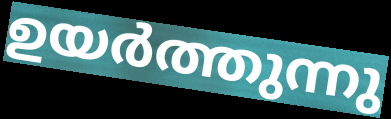
ഉയർത്തുന്നു